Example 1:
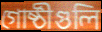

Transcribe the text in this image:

গোষ্ঠীগুলি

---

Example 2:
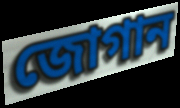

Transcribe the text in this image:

জোগান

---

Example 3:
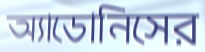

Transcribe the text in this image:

অ্যাডোনিসের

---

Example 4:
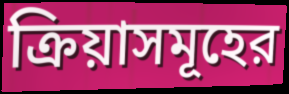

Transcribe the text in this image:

ক্রিয়াসমূহের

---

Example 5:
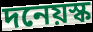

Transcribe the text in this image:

দনেয়স্ক